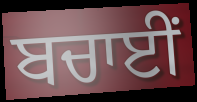
ਬਚਾਈਂ